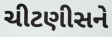
ચીટણીસને